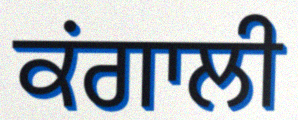
ਕਂਗਾਲੀ